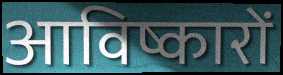
आविष्कारों